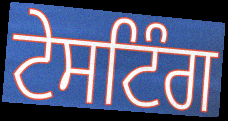
ਟੇਸਟਿੰਗ